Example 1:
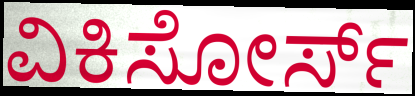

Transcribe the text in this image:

ವಿಕಿಸೋರ್ಸ್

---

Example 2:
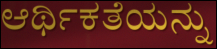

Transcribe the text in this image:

ಆರ್ಥಿಕತೆಯನ್ನು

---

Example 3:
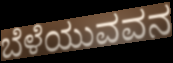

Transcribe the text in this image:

ಬೆಳೆಯುವವನ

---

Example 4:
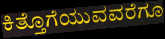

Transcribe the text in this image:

ಕಿತ್ತೊಗೆಯುವವರೆಗೂ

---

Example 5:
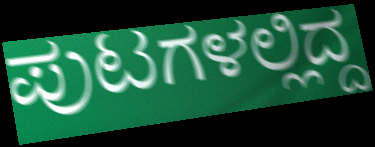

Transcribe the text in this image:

ಪುಟಗಳಲ್ಲಿದ್ದ